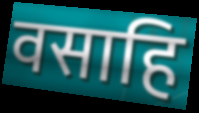
वसाहि